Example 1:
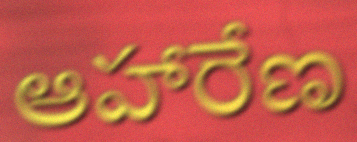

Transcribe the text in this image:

ఆహారేణ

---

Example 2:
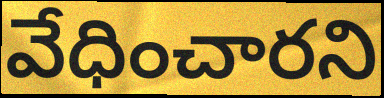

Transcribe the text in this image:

వేధించారని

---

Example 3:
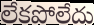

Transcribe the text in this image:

లేకపోలేదు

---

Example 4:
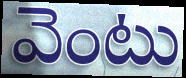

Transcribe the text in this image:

వెంటు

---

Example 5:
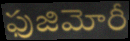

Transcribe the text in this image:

ఫుజిమోరీ